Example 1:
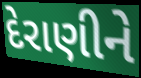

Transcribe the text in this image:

દેરાણીને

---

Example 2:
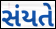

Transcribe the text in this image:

સંયતે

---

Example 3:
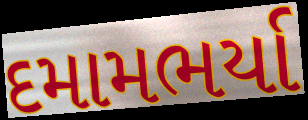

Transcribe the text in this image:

દમામભર્યા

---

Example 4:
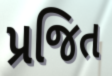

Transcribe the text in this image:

પ્રજિત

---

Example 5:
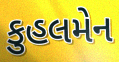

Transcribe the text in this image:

કુહલમેન